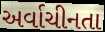
અર્વાચીનતા